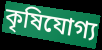
কৃষিযোগ্য